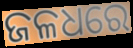
ଜଳଧରେ